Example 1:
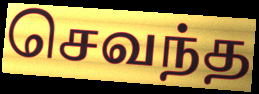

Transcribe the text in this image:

செவந்த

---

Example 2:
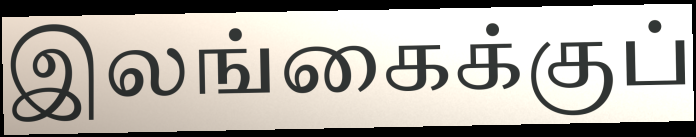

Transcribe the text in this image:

இலங்கைக்குப்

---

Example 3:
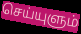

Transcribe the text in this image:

செய்யுளும்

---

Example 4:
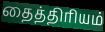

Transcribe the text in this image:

தைத்திரியம்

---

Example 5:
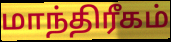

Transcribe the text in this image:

மாந்திரீகம்